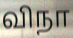
விநா